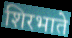
शिरभाते